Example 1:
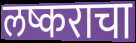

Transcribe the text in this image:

लष्कराचा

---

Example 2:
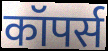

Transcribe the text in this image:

कॉपर्स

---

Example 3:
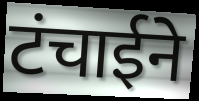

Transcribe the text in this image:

टंचाईने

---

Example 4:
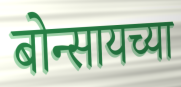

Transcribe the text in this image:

बोन्सायच्या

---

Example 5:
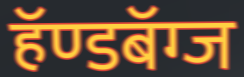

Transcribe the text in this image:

हॅण्डबॅग्ज